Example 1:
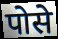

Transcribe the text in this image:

पोसे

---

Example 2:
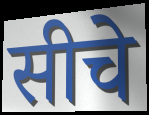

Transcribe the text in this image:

सीचे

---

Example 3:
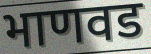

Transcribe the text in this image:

भाणवड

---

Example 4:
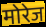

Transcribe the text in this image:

मोरेज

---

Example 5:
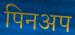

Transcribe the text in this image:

पिनअप